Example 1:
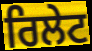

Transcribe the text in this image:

ਰਿਲੇਟ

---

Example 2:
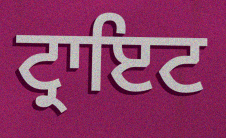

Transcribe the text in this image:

ਟ੍ਰਾਇਟ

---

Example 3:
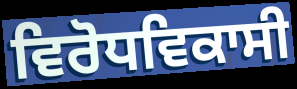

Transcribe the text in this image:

ਵਿਰੋਧਵਿਕਾਸੀ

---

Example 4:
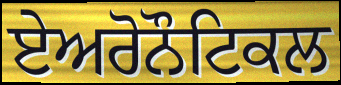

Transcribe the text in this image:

ਏਅਰੋਨੌਟਿਕਲ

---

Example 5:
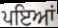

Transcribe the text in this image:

ਪਇਆਂ